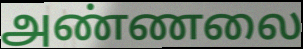
அண்ணலை